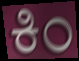
ಕಿಂ